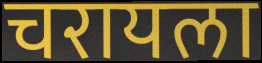
चरायला